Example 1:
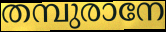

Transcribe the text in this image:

തമ്പുരാനേ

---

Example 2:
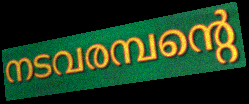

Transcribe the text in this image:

നടവരമ്പന്റെ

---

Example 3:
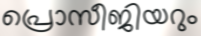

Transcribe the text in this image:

പ്രൊസീജിയറും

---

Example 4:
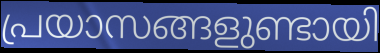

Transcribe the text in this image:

പ്രയാസങ്ങളുണ്ടായി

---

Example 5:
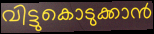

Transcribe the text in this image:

വിട്ടുകൊടുക്കാൻ